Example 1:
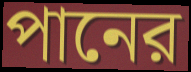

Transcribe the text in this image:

পানের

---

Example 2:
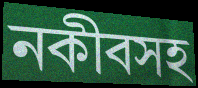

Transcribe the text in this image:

নকীবসহ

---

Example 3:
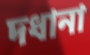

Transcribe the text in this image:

দধানা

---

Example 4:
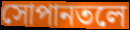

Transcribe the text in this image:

সোপানতলে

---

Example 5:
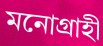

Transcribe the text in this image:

মনোগ্রাহী